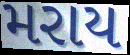
મરાય